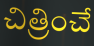
చిత్రించే